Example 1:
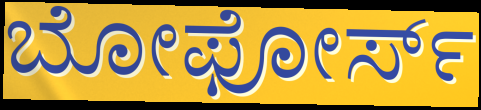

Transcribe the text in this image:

ಬೋಫೋರ್ಸ್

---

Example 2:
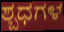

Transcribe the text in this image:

ಶ್ಬಧಗಳ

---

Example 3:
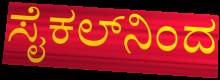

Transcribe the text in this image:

ಸೈಕಲ್‌ನಿಂದ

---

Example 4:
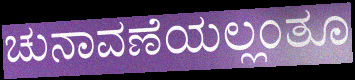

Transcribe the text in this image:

ಚುನಾವಣೆಯಲ್ಲಂತೂ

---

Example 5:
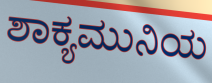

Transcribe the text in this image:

ಶಾಕ್ಯಮುನಿಯ